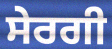
ਸੇਰਗੀ